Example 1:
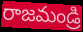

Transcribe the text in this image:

రాజమండ్రి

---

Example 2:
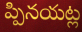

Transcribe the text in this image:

ప్పినయట్ల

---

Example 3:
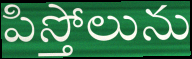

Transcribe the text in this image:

పిస్తోలును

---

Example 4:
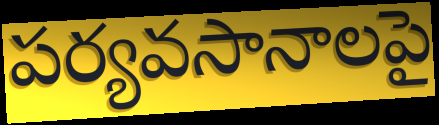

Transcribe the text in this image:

పర్యవసానాలపై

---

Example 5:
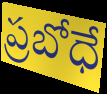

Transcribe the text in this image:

ప్రబోధే